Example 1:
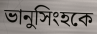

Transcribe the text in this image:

ভানুসিংহকে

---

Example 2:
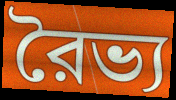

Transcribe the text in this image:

রৈভ্য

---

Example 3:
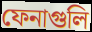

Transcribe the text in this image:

ফেনাগুলি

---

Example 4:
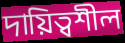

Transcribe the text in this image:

দায়িত্বশীল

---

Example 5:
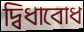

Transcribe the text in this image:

দ্বিধাবোধ